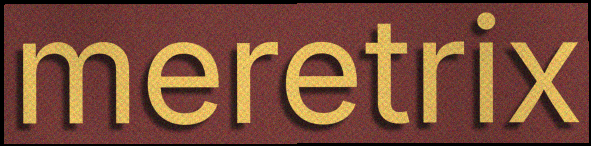
meretrix